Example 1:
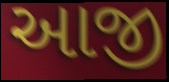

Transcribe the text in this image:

આજી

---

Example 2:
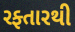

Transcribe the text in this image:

રફ્તારથી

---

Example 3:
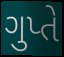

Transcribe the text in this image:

ગુપ્તે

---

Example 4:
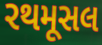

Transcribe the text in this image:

રથમૂસલ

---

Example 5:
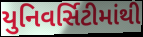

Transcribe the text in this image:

યુનિવર્સિટીમાંથી